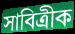
সাবিত্ৰীক